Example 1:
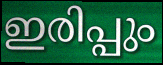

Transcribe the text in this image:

ഇരിപ്പും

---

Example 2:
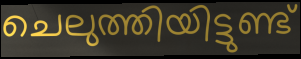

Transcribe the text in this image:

ചെലുത്തിയിട്ടുണ്ട്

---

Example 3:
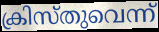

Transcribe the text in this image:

ക്രിസ്തുവെന്ന്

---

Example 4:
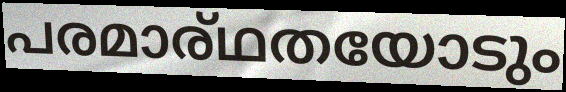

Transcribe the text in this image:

പരമാര്ഥതയോടും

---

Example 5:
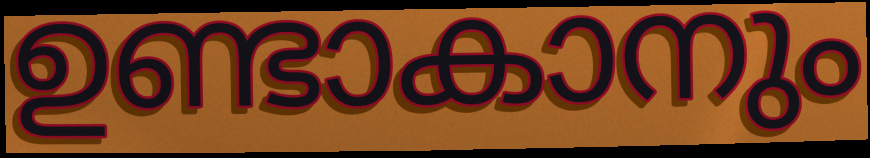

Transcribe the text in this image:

ഉണ്ടാകാനും